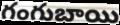
గంగుబాయి